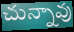
చున్నావు